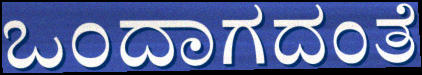
ಒಂದಾಗದಂತೆ